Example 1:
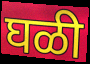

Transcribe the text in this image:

घळी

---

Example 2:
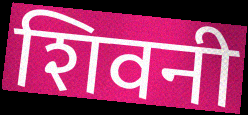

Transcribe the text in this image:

शिवनी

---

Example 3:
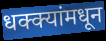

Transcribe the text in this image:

धक्क्यांमधून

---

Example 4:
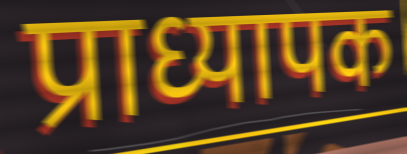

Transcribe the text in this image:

प्राध्यापक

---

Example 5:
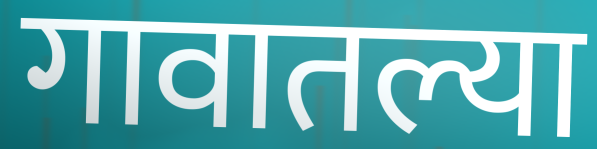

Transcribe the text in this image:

गावातल्या